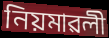
নিয়মাৱলী